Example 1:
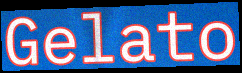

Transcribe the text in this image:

Gelato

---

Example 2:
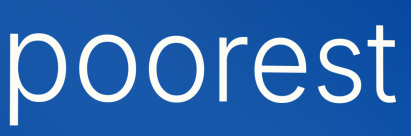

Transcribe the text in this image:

poorest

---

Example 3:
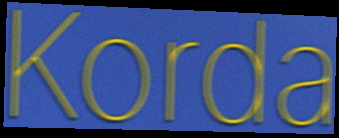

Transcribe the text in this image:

Korda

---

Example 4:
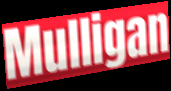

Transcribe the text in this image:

Mulligan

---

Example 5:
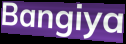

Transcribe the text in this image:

Bangiya